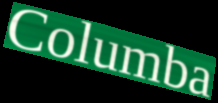
Columba